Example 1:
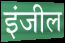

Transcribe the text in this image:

इंजील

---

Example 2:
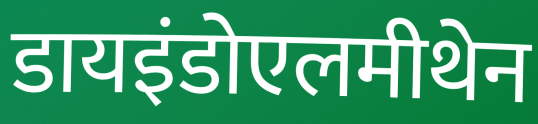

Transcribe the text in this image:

डायइंडोएलमीथेन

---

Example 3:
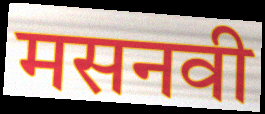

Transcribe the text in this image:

मसनवी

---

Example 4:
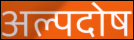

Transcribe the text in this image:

अल्पदोष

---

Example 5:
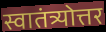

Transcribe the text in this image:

स्वातंत्र्योत्तर